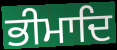
ਭੀਮਾਦਿ